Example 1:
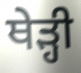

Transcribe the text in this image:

ਥੇੜ੍ਹੀ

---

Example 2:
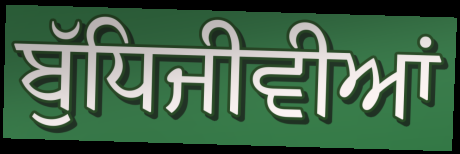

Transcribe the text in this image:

ਬੁੱਧਿਜੀਵੀਆਂ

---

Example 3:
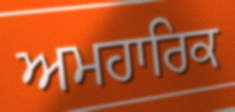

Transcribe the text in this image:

ਅਮਹਾਰਿਕ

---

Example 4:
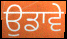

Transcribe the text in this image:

ਉਡਾਵੇ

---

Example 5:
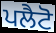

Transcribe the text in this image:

ਪਲੈਟੋ